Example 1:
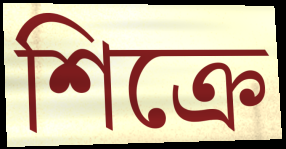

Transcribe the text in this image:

শিক্রে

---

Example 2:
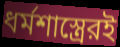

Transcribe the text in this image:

ধর্মশাস্ত্রেরই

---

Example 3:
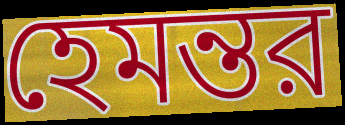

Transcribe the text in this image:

হেমন্তর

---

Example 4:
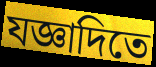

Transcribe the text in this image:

যজ্ঞাদিতে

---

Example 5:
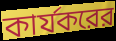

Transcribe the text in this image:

কার্যকরের